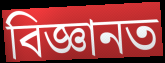
বিজ্ঞানত